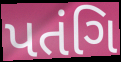
પતંગિ